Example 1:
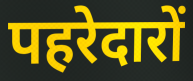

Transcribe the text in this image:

पहरेदारों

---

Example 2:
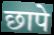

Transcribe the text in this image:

छापे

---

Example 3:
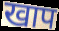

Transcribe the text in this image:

खाप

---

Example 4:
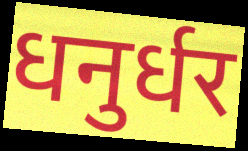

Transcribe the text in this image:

धनुर्धर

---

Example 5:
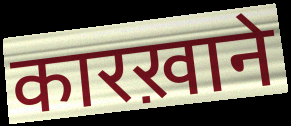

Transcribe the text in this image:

कारख़ाने